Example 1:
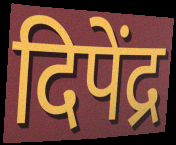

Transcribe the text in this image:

दिपेंद्र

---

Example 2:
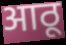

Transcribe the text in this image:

आठू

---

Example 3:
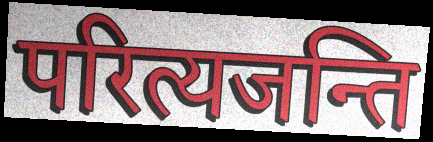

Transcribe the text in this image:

परित्यजन्ति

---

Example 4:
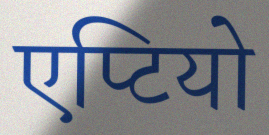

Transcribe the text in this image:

एप्टियो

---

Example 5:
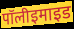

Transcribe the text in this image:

पॉलीइमाइड